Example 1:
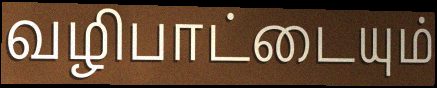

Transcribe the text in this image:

வழிபாட்டையும்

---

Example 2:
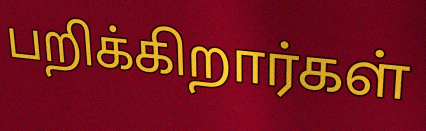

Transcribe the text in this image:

பறிக்கிறார்கள்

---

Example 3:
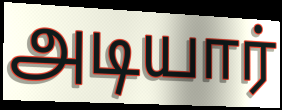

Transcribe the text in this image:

அடியார்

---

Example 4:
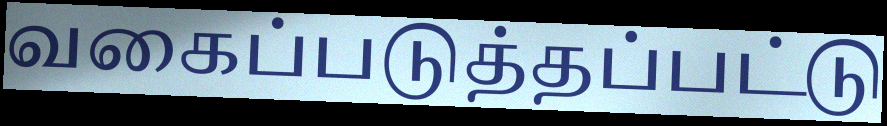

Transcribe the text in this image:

வகைப்படுத்தப்பட்டு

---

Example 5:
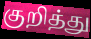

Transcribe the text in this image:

குறித்து